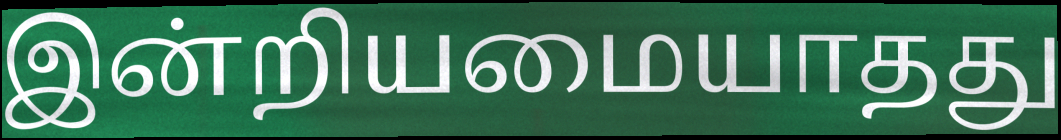
இன்றியமையாதது